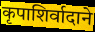
कृपाशिर्वादाने